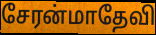
சேரன்மாதேவி